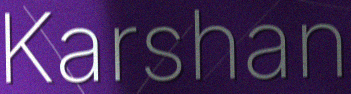
Karshan